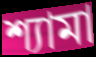
শ্যামা